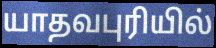
யாதவபுரியில்